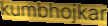
kumbhojkar